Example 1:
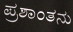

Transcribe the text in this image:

ಪ್ರಶಾಂತನು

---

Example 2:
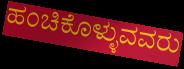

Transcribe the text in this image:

ಹಂಚಿಕೊಳ್ಳುವವರು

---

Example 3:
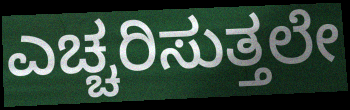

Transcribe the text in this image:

ಎಚ್ಚರಿಸುತ್ತಲೇ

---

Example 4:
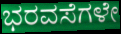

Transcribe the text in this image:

ಭರವಸೆಗಳೇ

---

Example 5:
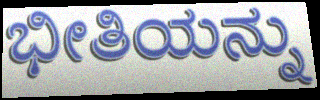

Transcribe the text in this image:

ಭೀತಿಯನ್ನು